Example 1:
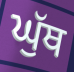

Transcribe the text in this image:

ਘੁੱਥ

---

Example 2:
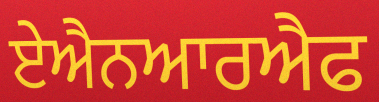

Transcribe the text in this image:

ਏਐਨਆਰਐਫ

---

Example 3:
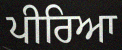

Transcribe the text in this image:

ਪੀਰਿਆ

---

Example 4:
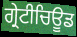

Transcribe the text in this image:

ਗ੍ਰੇਟੀਚਿਊਡ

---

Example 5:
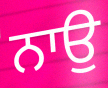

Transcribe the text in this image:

ਨਾਉ